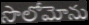
సొలోమోను